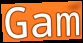
Gam